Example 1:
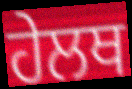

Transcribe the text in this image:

ਹੇਲਥ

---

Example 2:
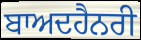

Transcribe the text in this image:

ਬਾਅਦਹੈਨਰੀ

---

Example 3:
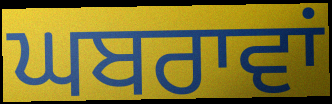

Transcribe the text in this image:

ਘਬਰਾਵਾਂ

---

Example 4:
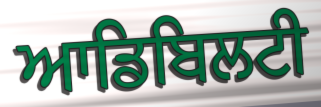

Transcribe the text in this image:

ਆਡਿਬਿਲਟੀ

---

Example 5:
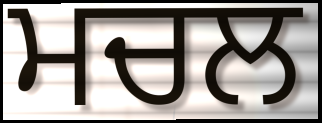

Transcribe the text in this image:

ਮਚਲ